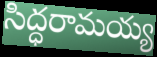
సిద్ధరామయ్య